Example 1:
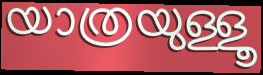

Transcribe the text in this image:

യാത്രയുള്ളൂ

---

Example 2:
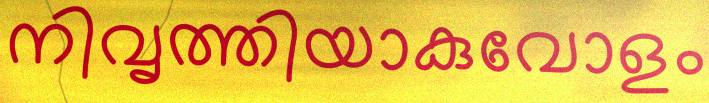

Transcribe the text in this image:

നിവൃത്തിയാകുവോളം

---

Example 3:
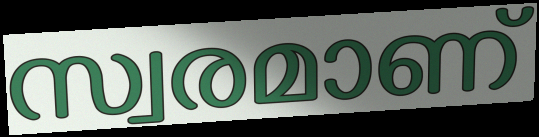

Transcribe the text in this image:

സ്വരമാണ്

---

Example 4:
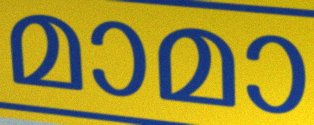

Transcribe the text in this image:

മാമാ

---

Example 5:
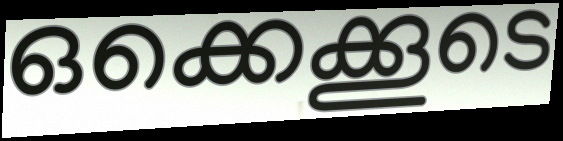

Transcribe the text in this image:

ഒക്കെക്കൂടെ